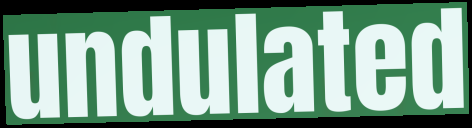
undulated